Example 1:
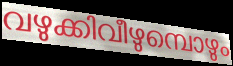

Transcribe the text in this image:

വഴുക്കിവീഴുമ്പൊഴും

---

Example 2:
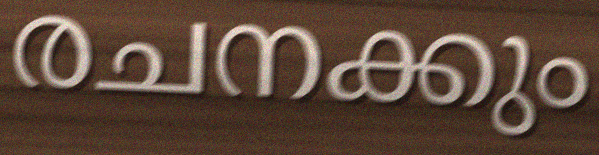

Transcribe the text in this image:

രചനക്കും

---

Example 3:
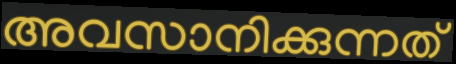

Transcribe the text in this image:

അവസാനിക്കുന്നത്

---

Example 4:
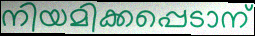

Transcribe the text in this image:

നിയമിക്കപ്പെടാന്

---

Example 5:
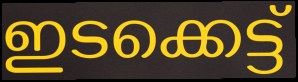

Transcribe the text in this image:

ഇടക്കെട്ട്